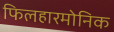
फिलहारमोनिक